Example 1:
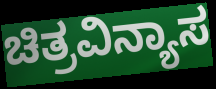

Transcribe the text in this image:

ಚಿತ್ರವಿನ್ಯಾಸ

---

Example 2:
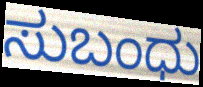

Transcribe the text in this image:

ಸುಬಂಧು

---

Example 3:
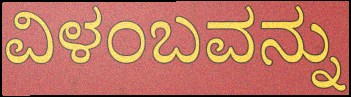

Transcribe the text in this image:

ವಿಳಂಬವನ್ನು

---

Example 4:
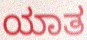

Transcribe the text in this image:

ಯಾತ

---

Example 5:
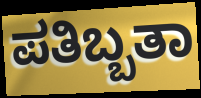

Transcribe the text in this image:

ಪತಿಬ್ಬತಾ